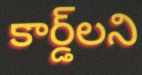
కార్డ్‌లని